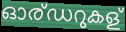
ഓര്ഡറുകള്